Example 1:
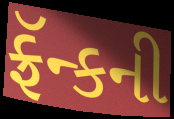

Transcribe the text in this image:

ફ્રૅન્કની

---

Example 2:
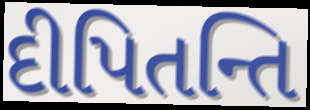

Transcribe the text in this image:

દીપિતન્તિ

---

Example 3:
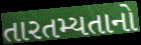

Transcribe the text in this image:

તારતમ્યતાનો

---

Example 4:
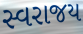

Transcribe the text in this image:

સ્વરાજય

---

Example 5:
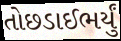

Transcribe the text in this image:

તોછડાઈભર્યું